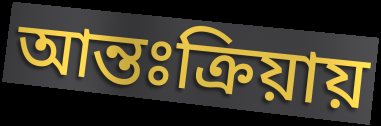
আন্তঃক্রিয়ায়